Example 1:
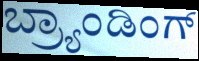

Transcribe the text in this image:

ಬ್ರ್ಯಾಂಡಿಂಗ್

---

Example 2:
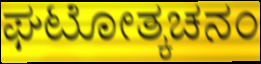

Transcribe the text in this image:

ಘಟೋತ್ಕಚನಂ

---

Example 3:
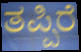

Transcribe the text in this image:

ತಪ್ಪಿರೆ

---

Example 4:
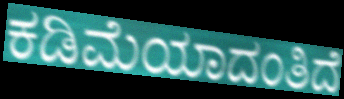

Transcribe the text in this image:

ಕಡಿಮೆಯಾದಂತಿದೆ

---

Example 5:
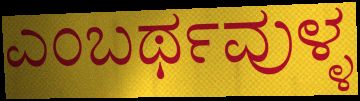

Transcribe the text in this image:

ಎಂಬರ್ಥವುಳ್ಳ